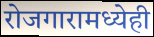
रोजगारामध्येही